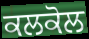
ਕਲਕੋਲ